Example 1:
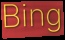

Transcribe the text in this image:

Bing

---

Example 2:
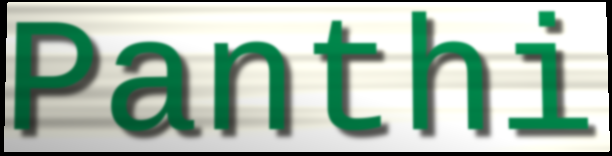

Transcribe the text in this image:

Panthi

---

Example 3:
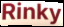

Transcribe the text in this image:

Rinky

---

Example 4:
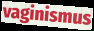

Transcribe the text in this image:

vaginismus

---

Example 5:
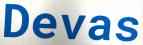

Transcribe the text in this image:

Devas